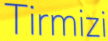
Tirmizi